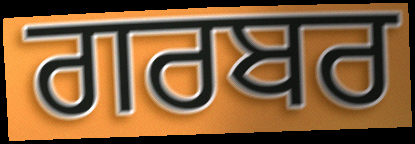
ਗਰਬਰ